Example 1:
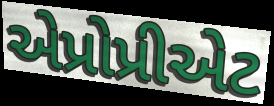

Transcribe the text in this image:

એપ્રોપ્રીએટ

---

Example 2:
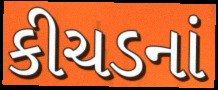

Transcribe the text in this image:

કીચડનાં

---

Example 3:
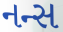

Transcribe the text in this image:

નન્સ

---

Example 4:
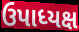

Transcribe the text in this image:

ઉપાધ્યક્ષ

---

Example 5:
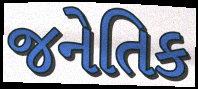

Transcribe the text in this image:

જનેતિક